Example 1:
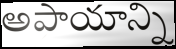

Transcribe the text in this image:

అపాయాన్ని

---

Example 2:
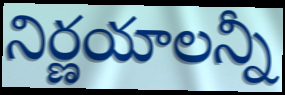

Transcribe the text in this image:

నిర్ణయాలన్నీ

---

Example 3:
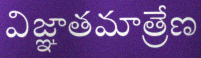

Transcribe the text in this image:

విజ్ఞాతమాత్రేణ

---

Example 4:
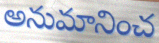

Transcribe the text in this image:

అనుమానించ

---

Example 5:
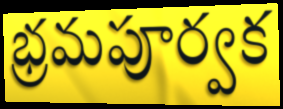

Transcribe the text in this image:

భ్రమపూర్వక